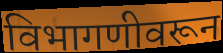
विभागणीवरून